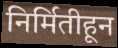
निर्मितीहून